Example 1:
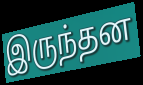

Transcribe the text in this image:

இருந்தன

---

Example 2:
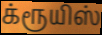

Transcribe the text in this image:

க்ரூயிஸ்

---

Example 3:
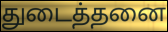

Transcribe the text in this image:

துடைத்தனை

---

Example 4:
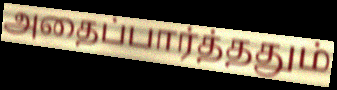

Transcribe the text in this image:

அதைப்பார்த்ததும்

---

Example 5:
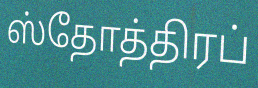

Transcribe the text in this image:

ஸ்தோத்திரப்